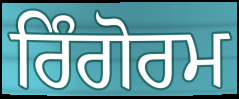
ਰਿੰਗੋਰਮ